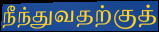
நீந்துவதற்குத்